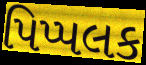
પિપ્પલક